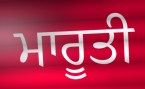
ਮਾਰੂਤੀ